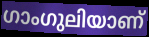
ഗാംഗുലിയാണ്